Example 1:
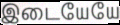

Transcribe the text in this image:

இடையேயே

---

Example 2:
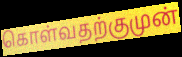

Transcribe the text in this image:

கொள்வதற்குமுன்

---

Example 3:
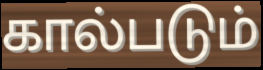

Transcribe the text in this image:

கால்படும்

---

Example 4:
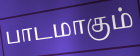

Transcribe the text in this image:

பாடமாகும்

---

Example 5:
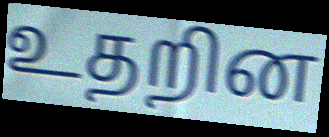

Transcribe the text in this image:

உதறின